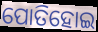
ପୋତିହୋଇ